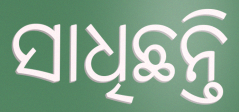
ସାଧିଛନ୍ତି